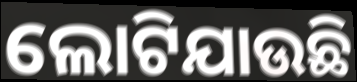
ଲୋଟିଯାଉଛି